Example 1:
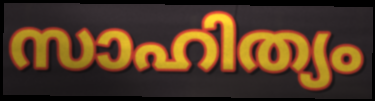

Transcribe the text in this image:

സാഹിത്യം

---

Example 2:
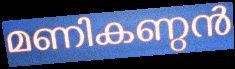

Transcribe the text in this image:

മണികണ്ഠൻ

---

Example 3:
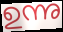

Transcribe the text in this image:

ഉന്നു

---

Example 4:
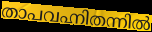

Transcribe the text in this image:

താപവഹ്നിതന്നിൽ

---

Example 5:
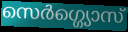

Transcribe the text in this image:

സെർഗ്ഗ്യൊസ്